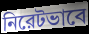
নিরেটভাবে